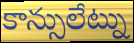
కాన్సులేట్ను